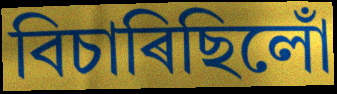
বিচাৰিছিলোঁ